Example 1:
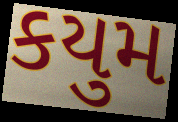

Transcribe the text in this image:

કયુમ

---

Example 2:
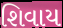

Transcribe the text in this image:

શિવાય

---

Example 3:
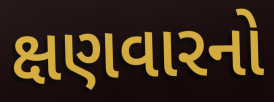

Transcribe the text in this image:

ક્ષણવારનો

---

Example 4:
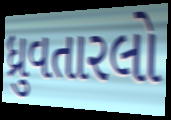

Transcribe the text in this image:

ધ્રુવતારલો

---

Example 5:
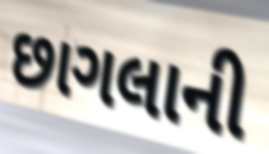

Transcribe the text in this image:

છાગલાની